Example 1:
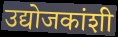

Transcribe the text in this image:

उद्योजकांशी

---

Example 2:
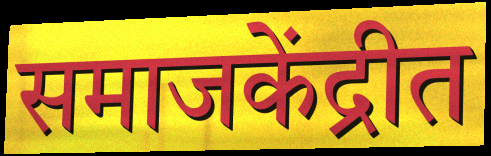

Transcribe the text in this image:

समाजकेंद्रीत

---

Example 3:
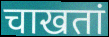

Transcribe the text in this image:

चाखतां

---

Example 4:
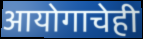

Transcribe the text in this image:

आयोगाचेही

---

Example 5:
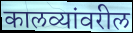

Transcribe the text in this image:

कालव्यांवरील